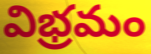
విభ్రమం